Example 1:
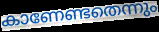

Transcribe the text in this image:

കാണേണ്ടതെന്നും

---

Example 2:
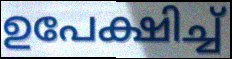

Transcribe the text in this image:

ഉപേക്ഷിച്ച്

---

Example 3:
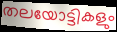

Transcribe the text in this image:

തലയോട്ടികളും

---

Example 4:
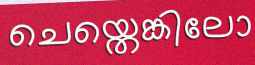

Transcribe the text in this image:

ചെയ്തെങ്കിലോ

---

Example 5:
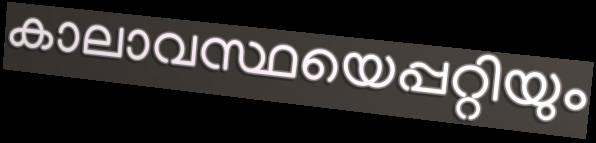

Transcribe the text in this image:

കാലാവസ്ഥയെപ്പറ്റിയും